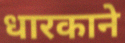
धारकाने